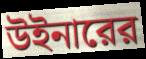
উইনারের